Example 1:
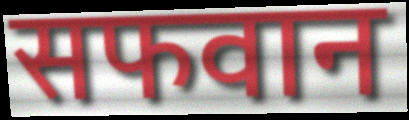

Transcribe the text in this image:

सफवान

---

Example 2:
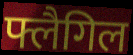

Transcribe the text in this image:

फ्लैगिल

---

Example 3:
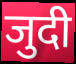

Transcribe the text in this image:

जुदी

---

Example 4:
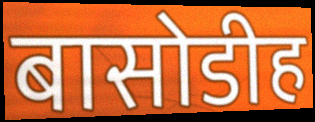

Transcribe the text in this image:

बासोडीह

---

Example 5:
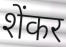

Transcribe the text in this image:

शेंकर